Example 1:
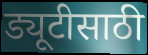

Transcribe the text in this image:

ड्यूटीसाठी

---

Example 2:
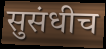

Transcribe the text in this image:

सुसंधीच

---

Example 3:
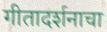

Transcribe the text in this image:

गीतादर्शनाचा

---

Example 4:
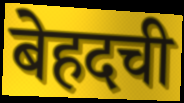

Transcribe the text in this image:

बेहदची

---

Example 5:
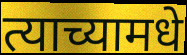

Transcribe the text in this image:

त्याच्यामधे